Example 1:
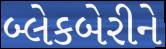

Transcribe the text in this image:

બ્લેકબેરીને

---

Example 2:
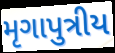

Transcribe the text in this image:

મૃગાપુત્રીય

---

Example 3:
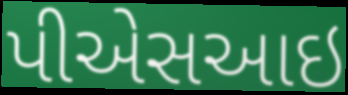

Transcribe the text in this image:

પીએસઆઇ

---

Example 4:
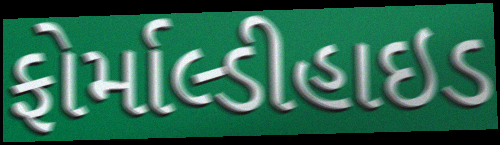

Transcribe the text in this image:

ફોર્માલ્ડીહાઇડ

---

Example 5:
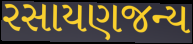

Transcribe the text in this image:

રસાયણજન્ય